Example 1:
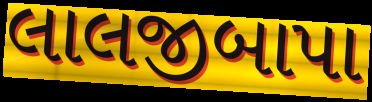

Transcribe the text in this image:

લાલજીબાપા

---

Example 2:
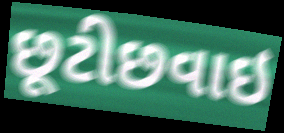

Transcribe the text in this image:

છૂટીછવાઇ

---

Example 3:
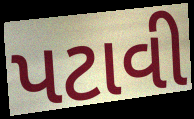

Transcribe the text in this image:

પટાવી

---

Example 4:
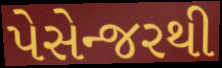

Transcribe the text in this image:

પેસેન્જરથી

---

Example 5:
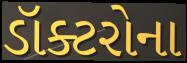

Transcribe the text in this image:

ડૉક્ટરોના